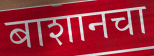
बाशानचा